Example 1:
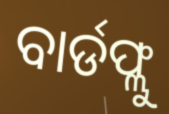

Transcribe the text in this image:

ବାର୍ଡଫ୍ଲୁ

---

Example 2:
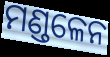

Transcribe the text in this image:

ମଣ୍ଡଳେନ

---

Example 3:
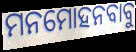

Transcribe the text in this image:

ମନମୋହନବାବୁ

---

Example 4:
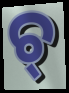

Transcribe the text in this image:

ଚ୍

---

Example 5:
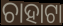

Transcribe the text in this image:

ଚାହାଟା